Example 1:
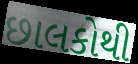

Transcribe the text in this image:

છાલકોથી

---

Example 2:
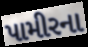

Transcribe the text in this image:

પામીરના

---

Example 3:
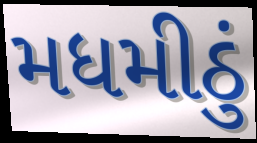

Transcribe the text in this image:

મધમીઠું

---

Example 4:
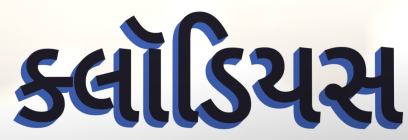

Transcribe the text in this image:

ક્લૉડિયસ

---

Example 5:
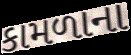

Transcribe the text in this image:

કામળાના